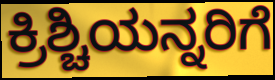
ಕ್ರಿಶ್ಚಿಯನ್ನರಿಗೆ